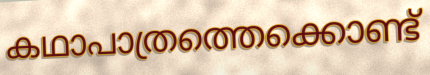
കഥാപാത്രത്തെക്കൊണ്ട്